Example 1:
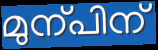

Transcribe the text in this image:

മുന്പിന്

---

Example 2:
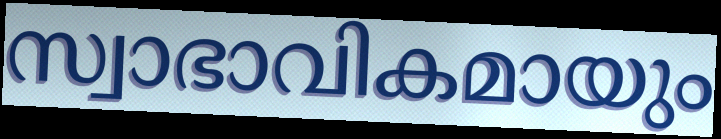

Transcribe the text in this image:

സ്വാഭാവികമായും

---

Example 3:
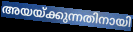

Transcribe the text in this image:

അയയ്ക്കുന്നതിനായി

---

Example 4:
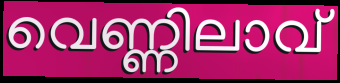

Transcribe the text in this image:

വെണ്ണിലാവ്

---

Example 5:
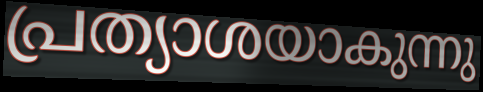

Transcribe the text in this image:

പ്രത്യാശയാകുന്നു